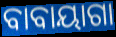
ବାବାୟାଗା